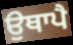
ਉਥਾਪੈ